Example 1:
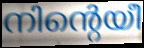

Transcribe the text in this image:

നിന്റെയീ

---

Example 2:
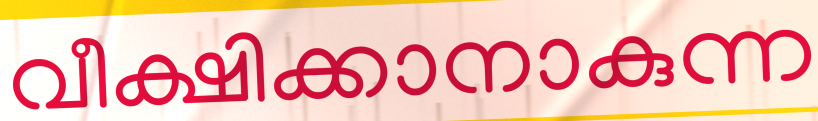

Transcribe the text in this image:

വീക്ഷിക്കാനാകുന്ന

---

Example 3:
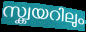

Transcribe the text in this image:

സ്ക്വയറിലും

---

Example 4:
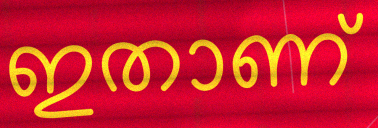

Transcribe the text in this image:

ഇതാണ്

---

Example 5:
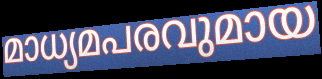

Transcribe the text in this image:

മാധ്യമപരവുമായ